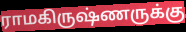
ராமகிருஷ்ணருக்கு